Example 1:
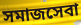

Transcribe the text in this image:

সমাজসেবা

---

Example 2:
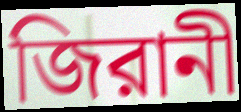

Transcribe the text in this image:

জিরানী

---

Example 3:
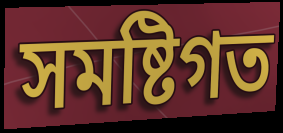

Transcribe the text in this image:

সমষ্টিগত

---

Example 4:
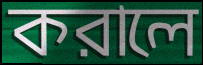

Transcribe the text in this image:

করালে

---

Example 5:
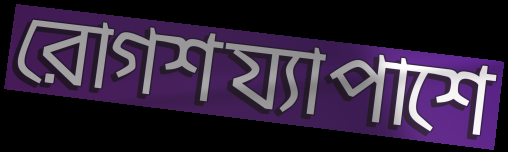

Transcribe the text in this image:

রোগশয্যাপাশে